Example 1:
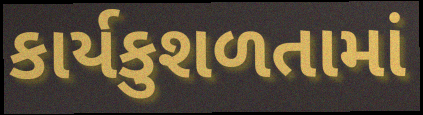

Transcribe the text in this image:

કાર્યકુશળતામાં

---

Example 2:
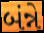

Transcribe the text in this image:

બંન્ને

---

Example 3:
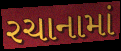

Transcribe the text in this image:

રચાનામાં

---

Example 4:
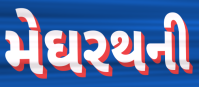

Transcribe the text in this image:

મેઘરથની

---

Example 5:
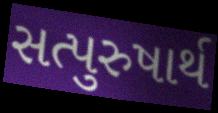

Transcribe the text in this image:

સત્પુરુષાર્થ